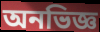
অনভিজ্ঞ